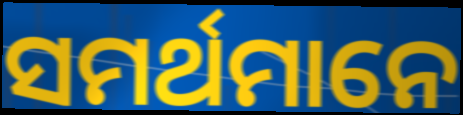
ସମର୍ଥମାନେ